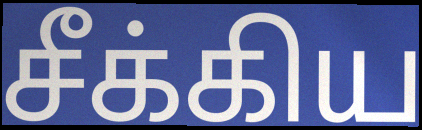
சீக்கிய